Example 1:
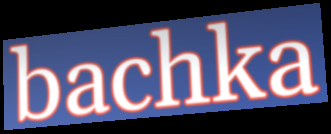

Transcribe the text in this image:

bachka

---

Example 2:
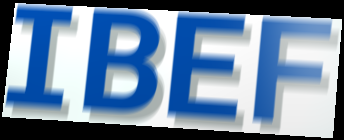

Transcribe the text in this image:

IBEF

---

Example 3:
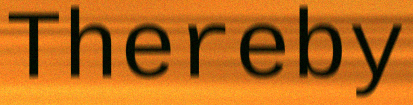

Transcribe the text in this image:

Thereby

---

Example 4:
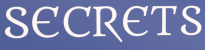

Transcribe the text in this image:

SECRETS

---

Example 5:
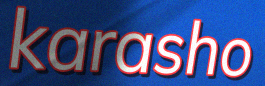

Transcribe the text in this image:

karasho